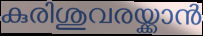
കുരിശുവരയ്ക്കാൻ